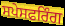
ਸਪੇਸਫਰਿੰਗ